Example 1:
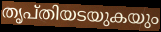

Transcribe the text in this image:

തൃപ്തിയടയുകയും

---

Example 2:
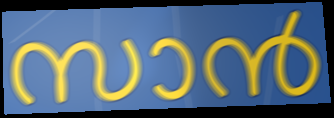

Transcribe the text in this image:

സാൻ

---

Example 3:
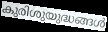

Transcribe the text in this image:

കുരിശുയുദ്ധങ്ങൾ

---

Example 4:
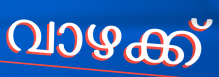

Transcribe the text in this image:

വാഴക്ക്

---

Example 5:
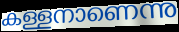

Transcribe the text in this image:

കള്ളനാണെന്നു